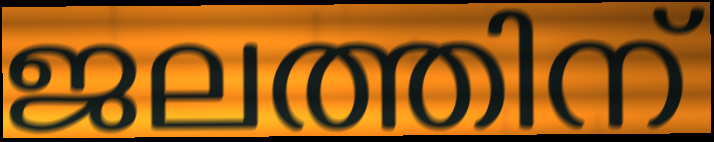
ജലത്തിന്